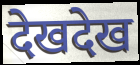
देखदेख